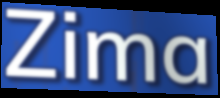
Zima